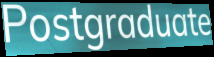
Postgraduate